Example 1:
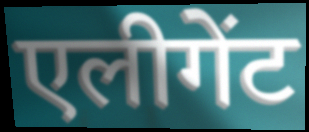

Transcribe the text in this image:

एलीगेंट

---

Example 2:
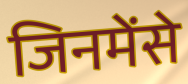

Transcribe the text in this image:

जिनमेंसे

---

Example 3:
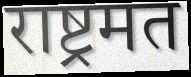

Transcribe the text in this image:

राष्ट्रमत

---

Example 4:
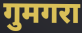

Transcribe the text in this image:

गुमगरा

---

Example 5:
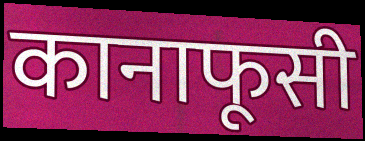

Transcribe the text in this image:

कानाफूसी